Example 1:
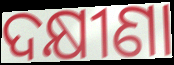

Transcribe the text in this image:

ଦକ୍ଷୀଣା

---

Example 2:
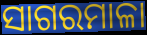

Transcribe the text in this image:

ସାଗରମାଳା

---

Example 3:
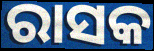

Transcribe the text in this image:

ରାସକ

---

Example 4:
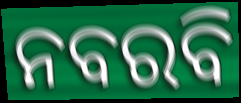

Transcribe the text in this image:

ନବରବି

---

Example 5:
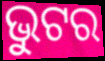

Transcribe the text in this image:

ଭୁଟର